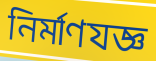
নির্মাণযজ্ঞ